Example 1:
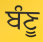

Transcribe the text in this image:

ਬੰਣੂ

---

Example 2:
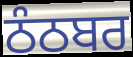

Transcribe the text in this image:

ਠੰਠਬਰ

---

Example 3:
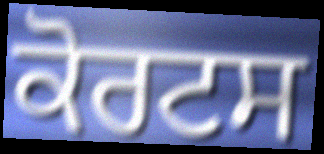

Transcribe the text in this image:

ਕੋਰਟਸ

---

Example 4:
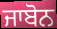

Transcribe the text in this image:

ਜਾਬੋਨ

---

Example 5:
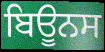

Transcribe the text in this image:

ਬਿਊਨਸ